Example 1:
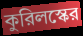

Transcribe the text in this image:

কুরিলস্কের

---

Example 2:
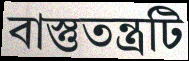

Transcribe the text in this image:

বাস্তুতন্ত্রটি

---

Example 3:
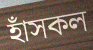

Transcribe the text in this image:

হাঁসকল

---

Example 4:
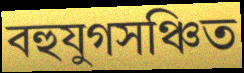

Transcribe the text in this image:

বহুযুগসঞ্চিত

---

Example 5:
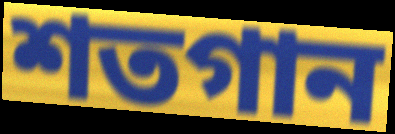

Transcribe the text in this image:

শতগান